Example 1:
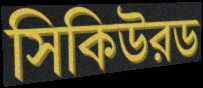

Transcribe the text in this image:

সিকিউরড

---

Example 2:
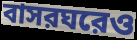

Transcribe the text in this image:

বাসরঘরেও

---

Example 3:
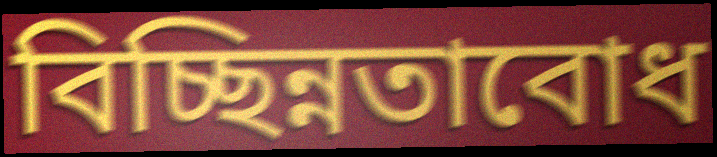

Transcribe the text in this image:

বিচ্ছিন্নতাবোধ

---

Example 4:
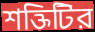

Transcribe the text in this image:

শক্তিটির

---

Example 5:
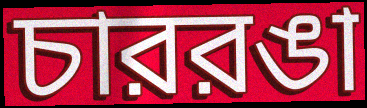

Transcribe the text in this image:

চাররঙা